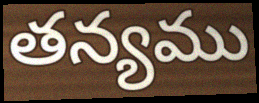
తన్యము